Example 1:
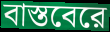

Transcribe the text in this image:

বাস্তবেরে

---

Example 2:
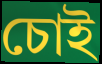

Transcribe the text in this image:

চোই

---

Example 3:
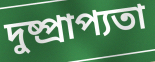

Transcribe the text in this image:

দুষ্প্রাপ্যতা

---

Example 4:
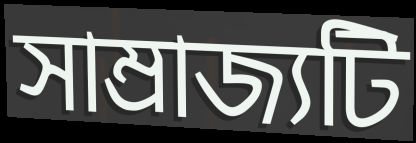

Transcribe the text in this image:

সাম্রাজ্যটি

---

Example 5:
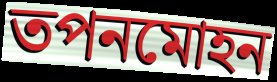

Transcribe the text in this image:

তপনমোহন